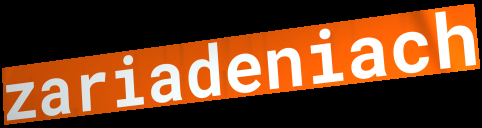
zariadeniach